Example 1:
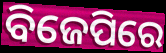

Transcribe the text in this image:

ବିଜେପିରେ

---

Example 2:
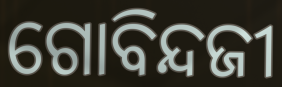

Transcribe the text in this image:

ଗୋବିନ୍ଦଜୀ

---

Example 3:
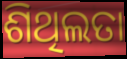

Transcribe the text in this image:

ଶିଥିଲତା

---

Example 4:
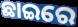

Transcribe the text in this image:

ଛାଇରେ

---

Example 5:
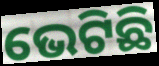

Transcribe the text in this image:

ଭେଟିଛି